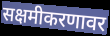
सक्षमीकरणावर